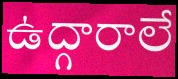
ఉద్గారాలే